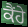
ਕੈਂਹੇ